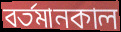
বর্তমানকাল